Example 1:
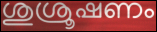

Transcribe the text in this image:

ശുശ്രൂഷണം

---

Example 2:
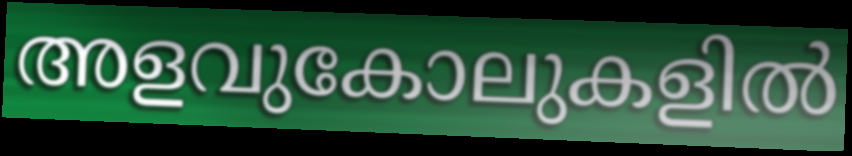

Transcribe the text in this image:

അളവുകോലുകളിൽ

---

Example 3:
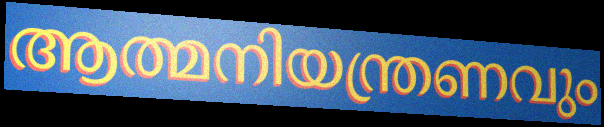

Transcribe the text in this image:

ആത്മനിയന്ത്രണവും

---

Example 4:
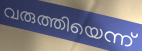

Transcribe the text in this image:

വരുത്തിയെന്ന്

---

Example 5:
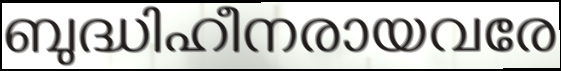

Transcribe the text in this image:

ബുദ്ധിഹീനരായവരേ